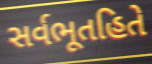
સર્વભૂતહિતે